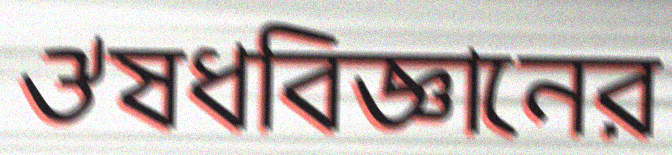
ঔষধবিজ্ঞানের